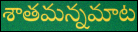
శాతమన్నమాట